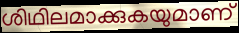
ശിഥിലമാക്കുകയുമാണ്